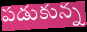
పడుకున్న